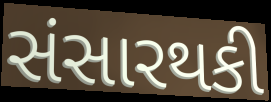
સંસારથકી